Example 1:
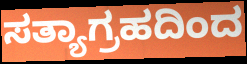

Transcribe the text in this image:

ಸತ್ಯಾಗ್ರಹದಿಂದ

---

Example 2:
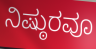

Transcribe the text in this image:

ನಿಷ್ಠುರವೂ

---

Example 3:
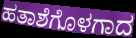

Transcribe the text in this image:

ಹತಾಶೆಗೊಳಗಾದ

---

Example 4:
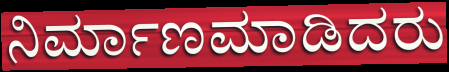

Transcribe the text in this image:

ನಿರ್ಮಾಣಮಾಡಿದರು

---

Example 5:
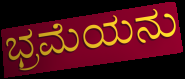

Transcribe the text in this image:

ಭ್ರಮೆಯನು